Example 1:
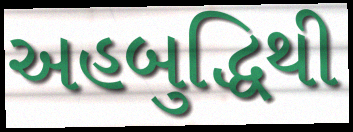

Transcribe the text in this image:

અહબુદ્ધિથી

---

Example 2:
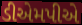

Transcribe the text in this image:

ડીએમપીએ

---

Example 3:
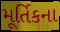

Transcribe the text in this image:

મૂર્તિકના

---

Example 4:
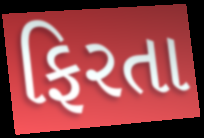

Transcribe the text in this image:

ફિરતા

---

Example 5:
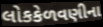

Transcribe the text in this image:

લોકકેળવણીના